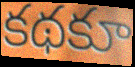
కథకూ